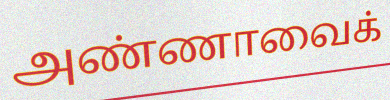
அண்ணாவைக்